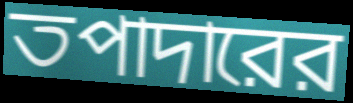
তপাদারের